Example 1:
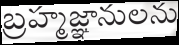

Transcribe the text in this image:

బ్రహ్మజ్ఞానులను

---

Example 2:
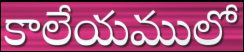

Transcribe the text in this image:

కాలేయములో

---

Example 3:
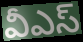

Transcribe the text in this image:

వీఎస్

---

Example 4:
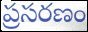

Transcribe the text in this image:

ప్రసరణం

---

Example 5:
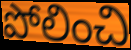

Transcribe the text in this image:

పోలించి